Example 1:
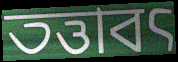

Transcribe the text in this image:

তত্তাবৎ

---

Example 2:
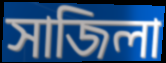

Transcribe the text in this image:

সাজিলা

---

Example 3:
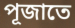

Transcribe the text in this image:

পূজাতে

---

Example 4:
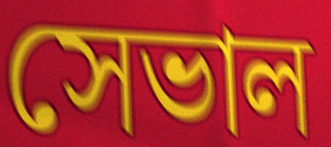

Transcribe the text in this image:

সেভাল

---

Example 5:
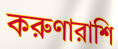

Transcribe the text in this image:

করুণারাশি